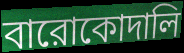
বারোকোদালি